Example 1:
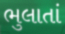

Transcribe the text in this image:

ભુલાતાં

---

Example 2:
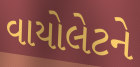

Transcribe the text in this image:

વાયોલેટને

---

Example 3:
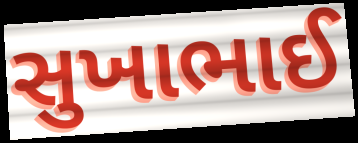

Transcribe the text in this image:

સુખાભાઈ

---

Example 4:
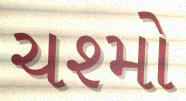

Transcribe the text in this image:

ચશ્મો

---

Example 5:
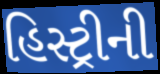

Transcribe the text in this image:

હિસ્ટ્રીની